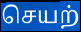
செயற்